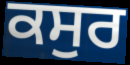
ਕਸੁਰ